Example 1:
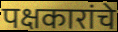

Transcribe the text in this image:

पक्षकारांचे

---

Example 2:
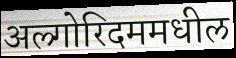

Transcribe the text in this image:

अल्गोरिदममधील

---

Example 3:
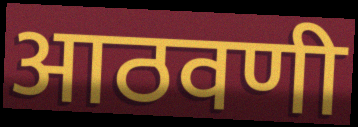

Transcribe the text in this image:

आठवणी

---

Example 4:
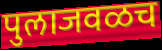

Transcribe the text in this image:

पुलाजवळच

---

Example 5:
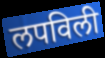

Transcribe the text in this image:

लपविली